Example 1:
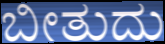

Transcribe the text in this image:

ಬೀತುದು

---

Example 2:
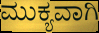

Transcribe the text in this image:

ಮುಕ್ಯವಾಗಿ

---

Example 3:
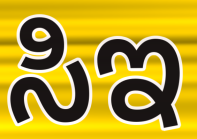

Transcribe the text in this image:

ಸಿಇ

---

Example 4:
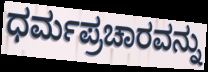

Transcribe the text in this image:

ಧರ್ಮಪ್ರಚಾರವನ್ನು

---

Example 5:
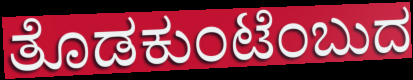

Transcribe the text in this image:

ತೊಡಕುಂಟೆಂಬುದ